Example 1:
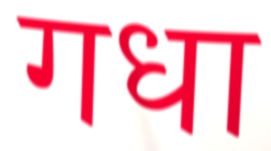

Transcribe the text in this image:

गधा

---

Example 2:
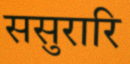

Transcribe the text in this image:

ससुरारि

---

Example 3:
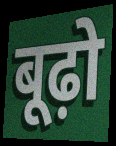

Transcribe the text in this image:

बूढ़ो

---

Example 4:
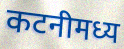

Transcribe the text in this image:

कटनीमध्य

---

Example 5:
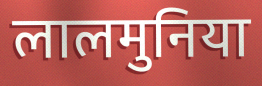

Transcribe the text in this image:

लालमुनिया